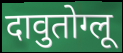
दावुतोग्लू